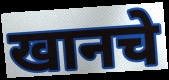
खानचे